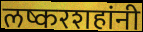
लष्करशहांनी